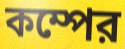
কম্পের